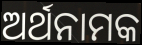
ଅର୍ଥନାମକ